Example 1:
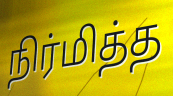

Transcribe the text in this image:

நிர்மித்த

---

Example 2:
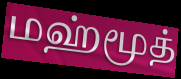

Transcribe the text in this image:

மஹ்மூத்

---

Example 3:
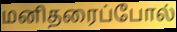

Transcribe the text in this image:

மனிதரைப்போல்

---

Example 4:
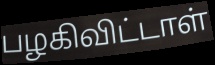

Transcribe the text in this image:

பழகிவிட்டாள்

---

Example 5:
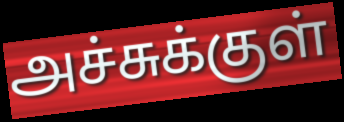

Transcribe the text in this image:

அச்சுக்குள்